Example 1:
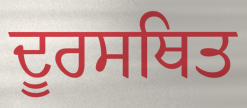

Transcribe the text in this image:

ਦੂਰਸਥਿਤ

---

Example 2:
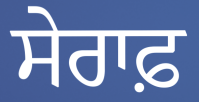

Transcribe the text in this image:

ਸੇਰਾਫ਼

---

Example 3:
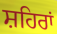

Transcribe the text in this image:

ਸ਼ਹਿਰਾਂ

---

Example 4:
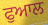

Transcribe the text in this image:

ਫੁਆਲ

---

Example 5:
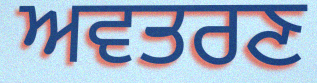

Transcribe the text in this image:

ਅਵਤਰਣ